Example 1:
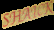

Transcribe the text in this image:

SHAICK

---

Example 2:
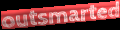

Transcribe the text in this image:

outsmarted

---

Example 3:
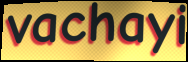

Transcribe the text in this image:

vachayi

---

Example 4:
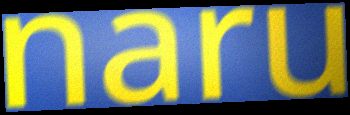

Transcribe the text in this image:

naru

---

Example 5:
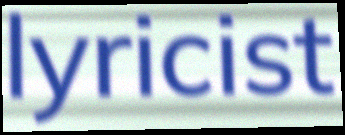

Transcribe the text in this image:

lyricist